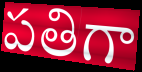
పతిగా